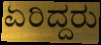
ಏರಿದ್ದರು